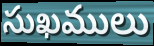
సుఖములు